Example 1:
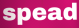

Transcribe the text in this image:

spead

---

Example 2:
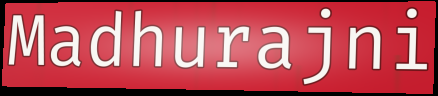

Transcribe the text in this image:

Madhurajni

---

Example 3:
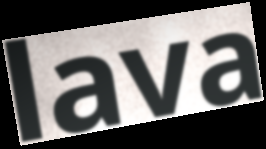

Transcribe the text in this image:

lava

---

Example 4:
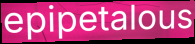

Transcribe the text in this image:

epipetalous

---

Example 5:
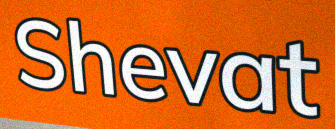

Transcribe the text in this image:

Shevat